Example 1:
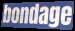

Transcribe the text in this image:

bondage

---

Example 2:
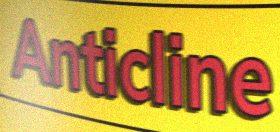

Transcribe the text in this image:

Anticline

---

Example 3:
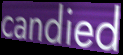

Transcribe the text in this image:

candied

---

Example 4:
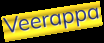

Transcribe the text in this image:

Veerappa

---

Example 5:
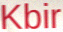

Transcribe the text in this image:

Kbir